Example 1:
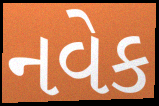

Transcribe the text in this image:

નવેક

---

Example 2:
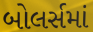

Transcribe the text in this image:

બોલર્સમાં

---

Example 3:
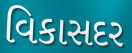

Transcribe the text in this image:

વિકાસદર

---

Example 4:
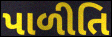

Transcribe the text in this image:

પાળીતિ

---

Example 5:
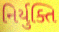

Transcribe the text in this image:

નિર્યુક્તિ